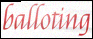
balloting